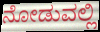
ನೋಡುವಲ್ಲಿ